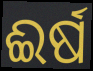
ଈର୍ଷ